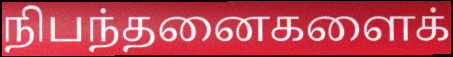
நிபந்தனைகளைக்